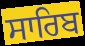
ਸਾਰਿਬ